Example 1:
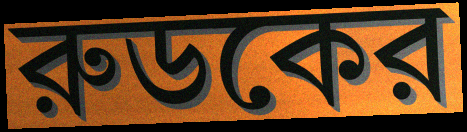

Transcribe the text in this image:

রুডকের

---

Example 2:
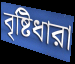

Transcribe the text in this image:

বৃষ্টিধারা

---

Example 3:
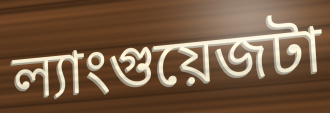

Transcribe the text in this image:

ল্যাংগুয়েজটা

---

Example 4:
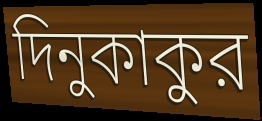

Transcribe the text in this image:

দিনুকাকুর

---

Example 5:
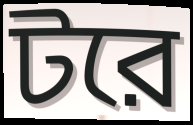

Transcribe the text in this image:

টরে